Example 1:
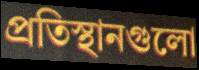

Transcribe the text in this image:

প্রতিস্থানগুলো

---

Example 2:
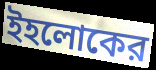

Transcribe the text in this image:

ইহলোকের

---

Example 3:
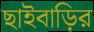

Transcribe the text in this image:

ছাইবাড়ির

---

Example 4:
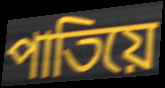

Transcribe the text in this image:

পাতিয়ে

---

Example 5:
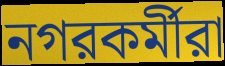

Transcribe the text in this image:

নগরকর্মীরা